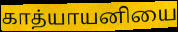
காத்யாயனியை